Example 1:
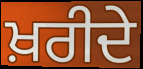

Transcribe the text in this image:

ਖ਼ਰੀਦੇ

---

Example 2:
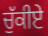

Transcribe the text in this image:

ਚੁੱਕੀਏ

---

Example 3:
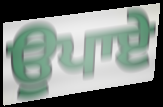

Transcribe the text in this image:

ਉਪਾਏ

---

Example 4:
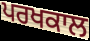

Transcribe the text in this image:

ਪਰਖਕਾਲ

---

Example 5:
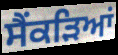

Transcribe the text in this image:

ਸੈਂਕੜਿਆਂ